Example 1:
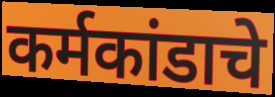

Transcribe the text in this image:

कर्मकांडाचे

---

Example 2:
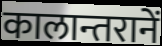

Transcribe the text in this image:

कालान्तरानें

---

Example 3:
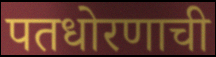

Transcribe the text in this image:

पतधोरणाची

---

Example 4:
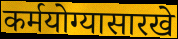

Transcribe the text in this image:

कर्मयोग्यासारखे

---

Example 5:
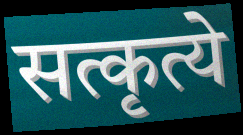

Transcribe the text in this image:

सत्कृत्ये